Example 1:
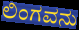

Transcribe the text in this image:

ಲಿಂಗವನು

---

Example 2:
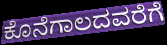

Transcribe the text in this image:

ಕೊನೆಗಾಲದವರೆಗೆ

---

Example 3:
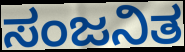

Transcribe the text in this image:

ಸಂಜನಿತ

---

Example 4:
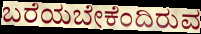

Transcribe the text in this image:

ಬರೆಯಬೇಕೆಂದಿರುವ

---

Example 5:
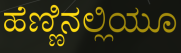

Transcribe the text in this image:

ಹೆಣ್ಣಿನಲ್ಲಿಯೂ